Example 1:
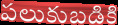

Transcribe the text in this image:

పలుకుబడికి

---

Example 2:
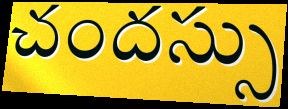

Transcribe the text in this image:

చందస్సు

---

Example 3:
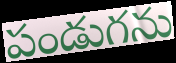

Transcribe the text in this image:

పండుగను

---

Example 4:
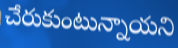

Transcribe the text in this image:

చేరుకుంటున్నాయని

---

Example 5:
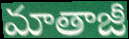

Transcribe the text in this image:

మాతాజీ